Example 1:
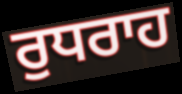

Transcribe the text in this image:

ਰੁਧਰਾਹ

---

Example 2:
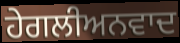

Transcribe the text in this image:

ਹੇਗਲੀਅਨਵਾਦ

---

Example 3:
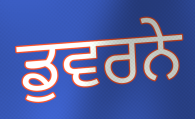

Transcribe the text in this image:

ਡੁਵਰਨੇ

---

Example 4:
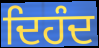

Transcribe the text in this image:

ਦਿਹੰਦ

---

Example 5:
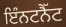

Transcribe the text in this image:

ਇੰਨਟਨੈੱਟ